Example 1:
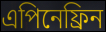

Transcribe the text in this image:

এপিনেফ্রিন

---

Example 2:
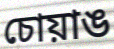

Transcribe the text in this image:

চোয়াঙ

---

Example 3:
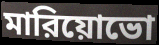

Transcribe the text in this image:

মারিয়োভো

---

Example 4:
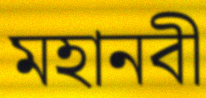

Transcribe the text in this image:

মহানবী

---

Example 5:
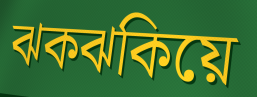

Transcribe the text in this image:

ঝকঝকিয়ে